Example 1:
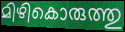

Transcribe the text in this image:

മിഴികൊരുത്തു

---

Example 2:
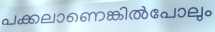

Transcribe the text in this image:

പക്കലാണെങ്കിൽപോലും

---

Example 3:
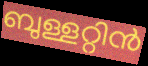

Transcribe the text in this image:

ബുള്ളറ്റിൻ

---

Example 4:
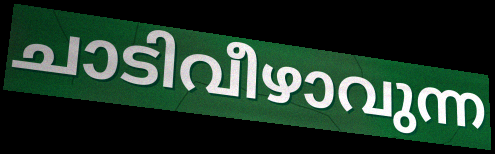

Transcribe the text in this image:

ചാടിവീഴാവുന്ന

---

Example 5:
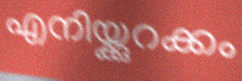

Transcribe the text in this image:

എനിയ്ക്കുറക്കം